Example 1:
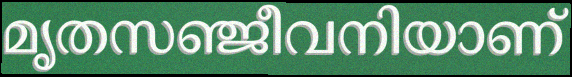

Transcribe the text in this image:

മൃതസഞ്ജീവനിയാണ്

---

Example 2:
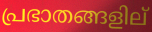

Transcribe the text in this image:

പ്രഭാതങ്ങളില്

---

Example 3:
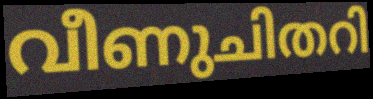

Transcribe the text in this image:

വീണുചിതറി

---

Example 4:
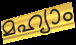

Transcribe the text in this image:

മഹ്യാം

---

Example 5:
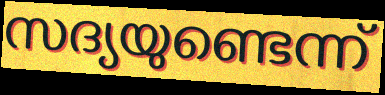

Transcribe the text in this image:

സദ്യയുണ്ടെന്ന്